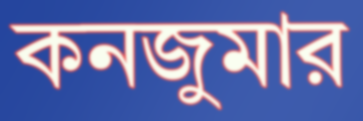
কনজুমার